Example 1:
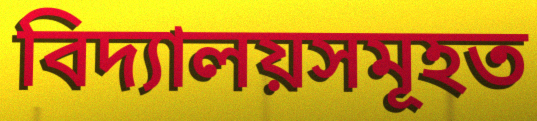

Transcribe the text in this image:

বিদ্যালয়সমূহত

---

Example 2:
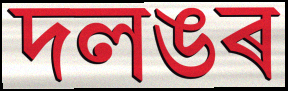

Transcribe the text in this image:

দলঙৰ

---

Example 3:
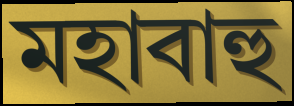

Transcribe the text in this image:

মহাবাহু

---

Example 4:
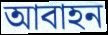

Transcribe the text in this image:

আবাহন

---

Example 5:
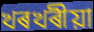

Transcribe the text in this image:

খৰখৰীয়া